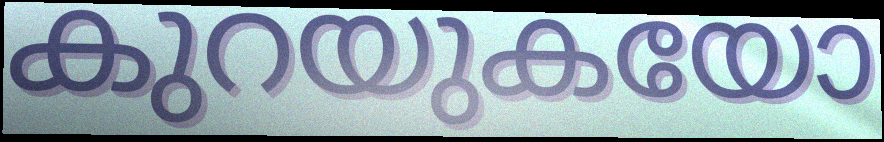
കുറയുകയോ